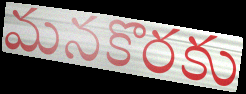
మనకొరకు